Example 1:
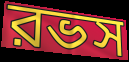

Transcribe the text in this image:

রভস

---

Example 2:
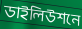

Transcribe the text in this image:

ডাইলিউশনে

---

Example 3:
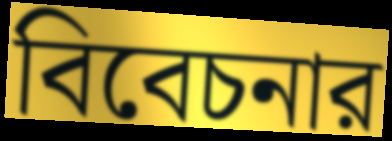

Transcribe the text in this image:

বিবেচনার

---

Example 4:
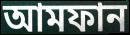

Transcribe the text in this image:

আমফান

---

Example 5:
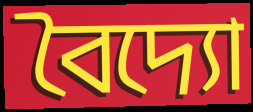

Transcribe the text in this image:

বৈদ্যো